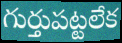
గుర్తుపట్టలేక